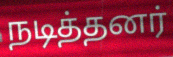
நடித்தனர்